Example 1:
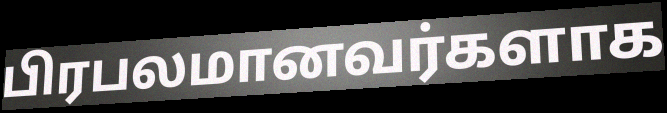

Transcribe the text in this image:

பிரபலமானவர்களாக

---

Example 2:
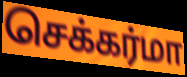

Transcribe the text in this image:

செக்கர்மா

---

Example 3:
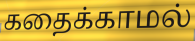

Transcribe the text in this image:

கதைக்காமல்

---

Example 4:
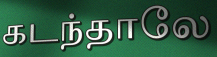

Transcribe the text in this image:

கடந்தாலே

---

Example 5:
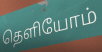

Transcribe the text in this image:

தெளியோம்